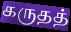
கருதத்